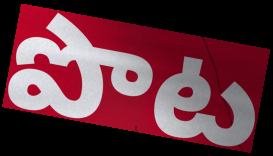
పొట